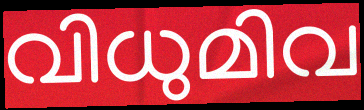
വിധുമിവ